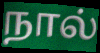
நால்